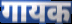
गायक